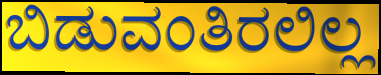
ಬಿಡುವಂತಿರಲಿಲ್ಲ